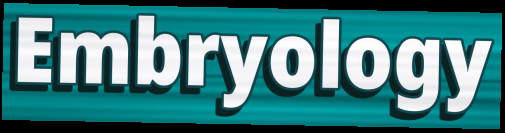
Embryology